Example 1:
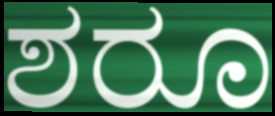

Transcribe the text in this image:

ಶರೂ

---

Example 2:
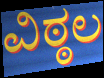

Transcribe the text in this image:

ವಿಠ್ಠಲ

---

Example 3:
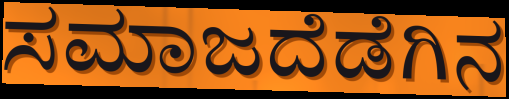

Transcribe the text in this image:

ಸಮಾಜದೆಡೆಗಿನ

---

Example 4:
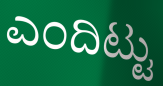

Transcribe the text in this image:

ಎಂದಿಟ್ಟು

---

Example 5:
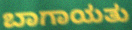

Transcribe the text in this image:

ಬಾಗಾಯತು